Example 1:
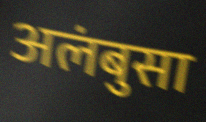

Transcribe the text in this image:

अलंबुसा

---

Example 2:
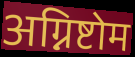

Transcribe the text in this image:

अग्निष्टोम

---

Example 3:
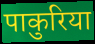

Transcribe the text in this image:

पाकुरिया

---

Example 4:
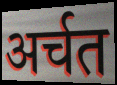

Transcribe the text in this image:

अर्चत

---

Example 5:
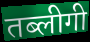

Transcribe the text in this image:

तब्लीगी